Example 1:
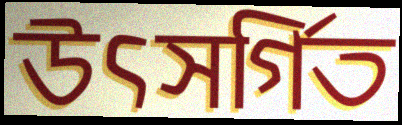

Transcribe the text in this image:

উৎসৰ্গিত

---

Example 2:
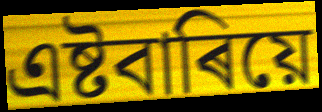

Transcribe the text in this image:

এষ্টবাৰিয়ে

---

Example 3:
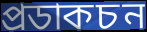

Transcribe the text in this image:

প্ৰডাকচন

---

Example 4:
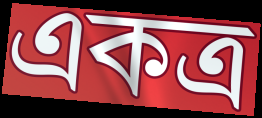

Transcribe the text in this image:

একত্ৰ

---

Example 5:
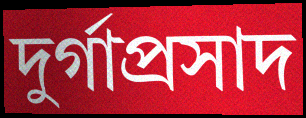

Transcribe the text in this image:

দুৰ্গাপ্ৰসাদ